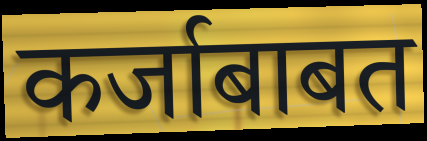
कर्जाबाबत